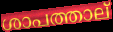
ശാപത്താല്